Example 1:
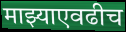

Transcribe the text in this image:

माझ्याएवढीच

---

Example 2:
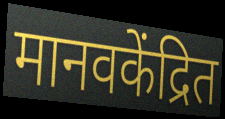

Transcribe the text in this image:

मानवकेंद्रित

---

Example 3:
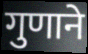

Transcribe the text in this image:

गुणाने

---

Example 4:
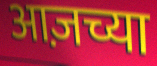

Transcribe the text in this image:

आज़च्या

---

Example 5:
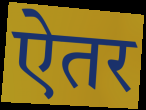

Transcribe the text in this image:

ऐतर